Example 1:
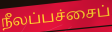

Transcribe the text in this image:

நீலப்பச்சைப்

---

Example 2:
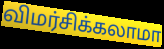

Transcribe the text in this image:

விமர்சிக்கலாமா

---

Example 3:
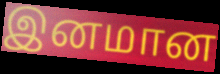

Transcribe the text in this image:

இனமான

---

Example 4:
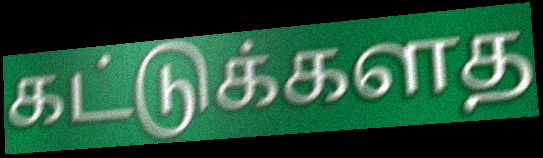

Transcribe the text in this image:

கட்டுக்களத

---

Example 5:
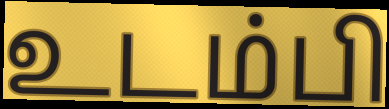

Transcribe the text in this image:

உடம்பி